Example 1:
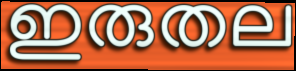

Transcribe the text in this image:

ഇരുതല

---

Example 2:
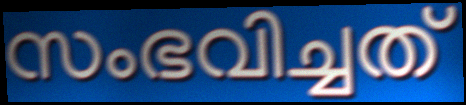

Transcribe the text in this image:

സംഭവിച്ചത്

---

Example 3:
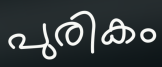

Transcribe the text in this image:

പുരികം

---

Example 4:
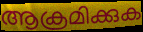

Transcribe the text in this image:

ആക്രമിക്കുക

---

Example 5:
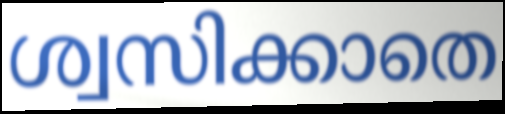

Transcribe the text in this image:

ശ്വസിക്കാതെ